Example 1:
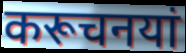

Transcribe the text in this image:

करूचनयां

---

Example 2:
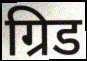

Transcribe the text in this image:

ग्रिड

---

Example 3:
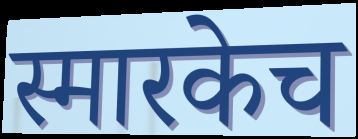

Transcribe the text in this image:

स्मारकेच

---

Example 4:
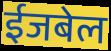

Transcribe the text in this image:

ईजबेल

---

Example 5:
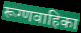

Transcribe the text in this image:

रूग्णवाहिका